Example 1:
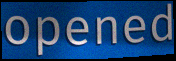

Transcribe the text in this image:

opened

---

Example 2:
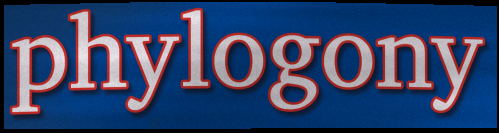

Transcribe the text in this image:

phylogony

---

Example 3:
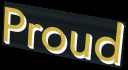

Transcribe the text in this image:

Proud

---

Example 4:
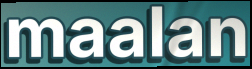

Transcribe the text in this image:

maalan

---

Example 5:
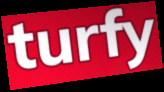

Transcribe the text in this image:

turfy